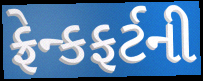
ફ્રેન્કફર્ટની